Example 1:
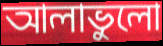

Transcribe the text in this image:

আলাভুলো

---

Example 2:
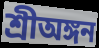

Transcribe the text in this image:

শ্রীঅঙ্গন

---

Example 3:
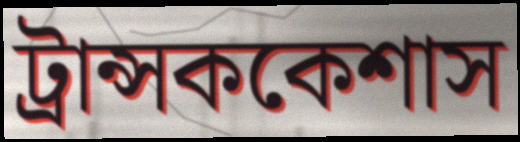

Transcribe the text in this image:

ট্রান্সককেশাস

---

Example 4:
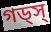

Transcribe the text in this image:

গড্স্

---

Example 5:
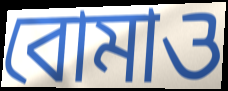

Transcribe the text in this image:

বোমাও